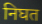
निघत